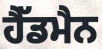
ਹੈੱਡਮੈਨ